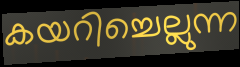
കയറിച്ചെല്ലുന്ന